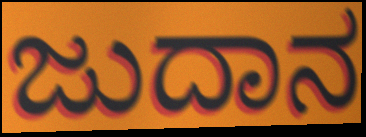
ಜುದಾನ